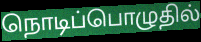
நொடிப்பொழுதில்